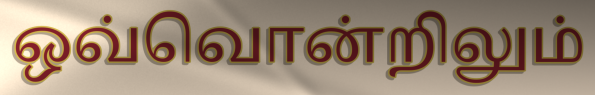
ஒவ்வொன்றிலும்